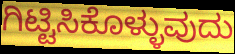
ಗಿಟ್ಟಿಸಿಕೊಳ್ಳುವುದು